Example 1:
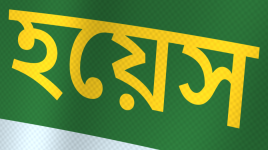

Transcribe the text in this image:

হয়েস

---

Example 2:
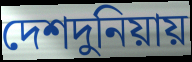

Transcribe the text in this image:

দেশদুনিয়ায়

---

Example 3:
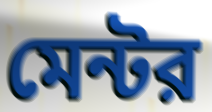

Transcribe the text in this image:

মেন্টর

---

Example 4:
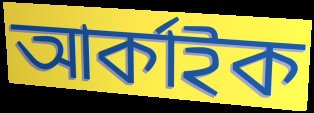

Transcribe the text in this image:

আর্কাইক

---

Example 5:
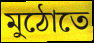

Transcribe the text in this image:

মুঠোতে